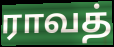
ராவத்